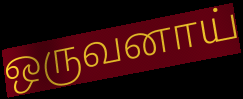
ஒருவனாய்